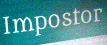
Impostor